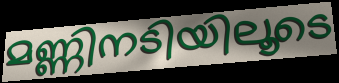
മണ്ണിനടിയിലൂടെ